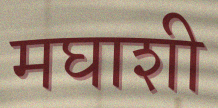
मघाशी